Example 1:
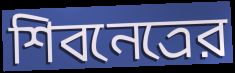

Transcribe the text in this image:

শিবনেত্রের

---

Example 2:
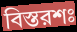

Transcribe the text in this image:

বিস্তরশঃ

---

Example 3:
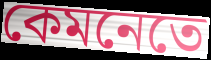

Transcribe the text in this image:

কেমনেতে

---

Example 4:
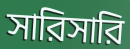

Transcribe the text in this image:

সারিসারি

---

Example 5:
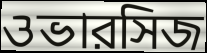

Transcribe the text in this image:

ওভারসিজ